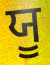
ਯੂ